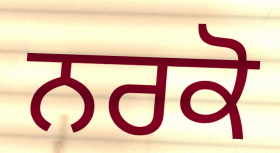
ਨਰਕੋ